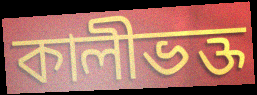
কালীভক্ত